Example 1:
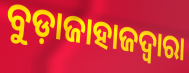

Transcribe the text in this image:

ବୁଡ଼ାଜାହାଜଦ୍ୱାରା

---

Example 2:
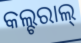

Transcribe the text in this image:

କଲ୍ଚରାଲ୍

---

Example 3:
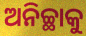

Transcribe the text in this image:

ଅନିଚ୍ଛାକୁ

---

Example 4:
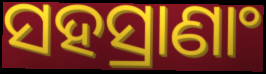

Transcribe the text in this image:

ସହସ୍ରାଣାଂ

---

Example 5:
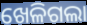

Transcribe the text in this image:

ଖେଳିଗଲା